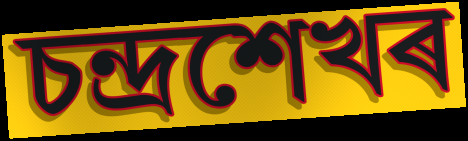
চন্দ্ৰশেখৰ